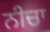
ਨੀਚਾ